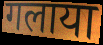
गलाया